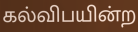
கல்விபயின்ற